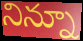
నిన్నూ